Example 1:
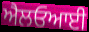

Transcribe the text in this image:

ਐਲਓਆਈ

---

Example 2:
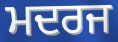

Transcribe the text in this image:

ਮਦਰਜ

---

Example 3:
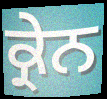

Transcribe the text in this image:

ਕ੍ਰੇਨ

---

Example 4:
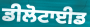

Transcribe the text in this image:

ਡੀਲੋਟਾਈਡ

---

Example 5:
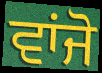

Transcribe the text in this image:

ਵਾਂਜੋ